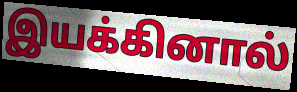
இயக்கினால்